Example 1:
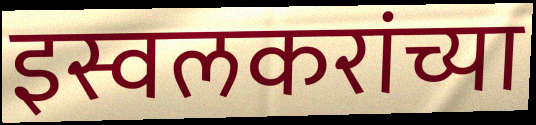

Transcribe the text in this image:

इस्वलकरांच्या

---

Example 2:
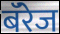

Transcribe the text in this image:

बॅरेज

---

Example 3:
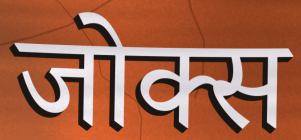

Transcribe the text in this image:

जोक्स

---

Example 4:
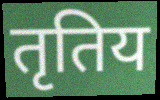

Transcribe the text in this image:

तृतिय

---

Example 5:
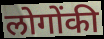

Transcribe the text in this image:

लोगोंकी